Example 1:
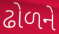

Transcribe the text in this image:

ઢોળને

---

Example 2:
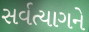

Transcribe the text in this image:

સર્વત્યાગને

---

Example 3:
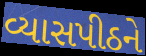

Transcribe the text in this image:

વ્યાસપીઠને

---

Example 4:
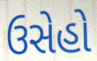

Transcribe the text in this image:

ઉસેહો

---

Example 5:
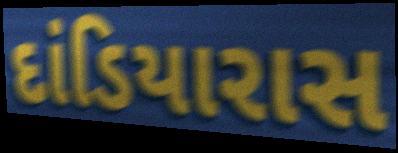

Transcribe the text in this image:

દાંડિયારાસ